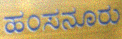
ಹಂಸನೂರು